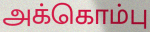
அக்கொம்பு